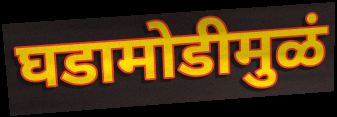
घडामोडीमुळं